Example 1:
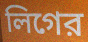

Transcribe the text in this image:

লিগের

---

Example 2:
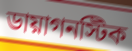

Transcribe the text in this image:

ডায়াগনস্টিক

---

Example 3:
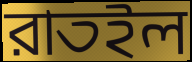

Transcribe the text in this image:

রাতইল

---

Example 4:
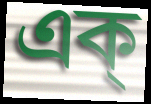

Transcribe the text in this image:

এক্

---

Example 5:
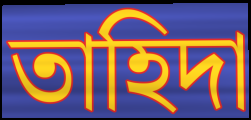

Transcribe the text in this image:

তাহিদা